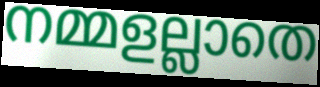
നമ്മളല്ലാതെ